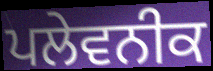
ਪਲੇਵਨੀਕ